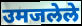
उमजलेले